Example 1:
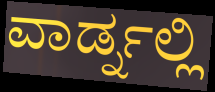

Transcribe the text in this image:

ವಾರ್ಡ್ನಲ್ಲಿ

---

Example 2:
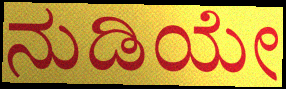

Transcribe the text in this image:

ನುಡಿಯೇ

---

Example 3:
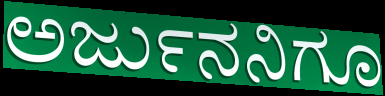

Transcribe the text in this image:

ಅರ್ಜುನನಿಗೂ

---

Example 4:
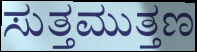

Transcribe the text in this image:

ಸುತ್ತಮುತ್ತಣ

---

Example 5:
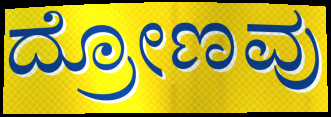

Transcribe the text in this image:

ದ್ರೋಣವು